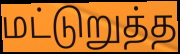
மட்டுறுத்த